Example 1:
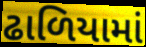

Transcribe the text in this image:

ઢાળિયામાં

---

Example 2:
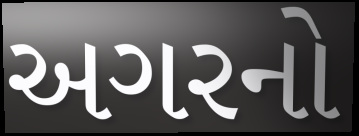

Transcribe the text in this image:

અગરનો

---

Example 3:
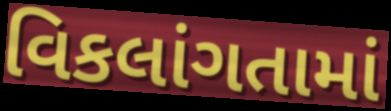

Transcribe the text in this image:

વિકલાંગતામાં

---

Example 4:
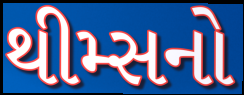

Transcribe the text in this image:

થીમ્સનો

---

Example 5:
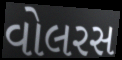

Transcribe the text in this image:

વોલરસ